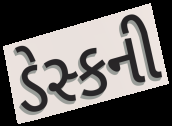
ડેસ્કની